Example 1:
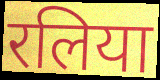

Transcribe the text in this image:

रलिया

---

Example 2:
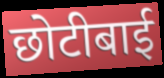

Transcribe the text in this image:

छोटीबाई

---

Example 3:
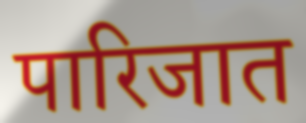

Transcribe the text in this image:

पारिजात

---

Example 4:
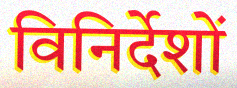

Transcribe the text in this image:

विनिर्देशों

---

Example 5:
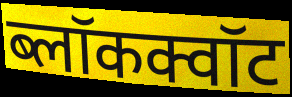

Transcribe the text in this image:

ब्लॉकक्वॉट